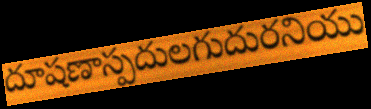
దూషణాస్పదులగుదురనియు